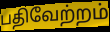
பதிவேற்றம்